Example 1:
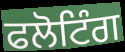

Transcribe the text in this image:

ਫਲੋਟਿੰਗ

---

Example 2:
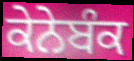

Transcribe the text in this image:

ਕੇਨੇਬੰਕ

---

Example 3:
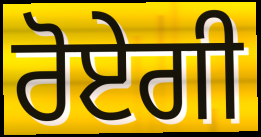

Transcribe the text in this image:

ਰੋਏਗੀ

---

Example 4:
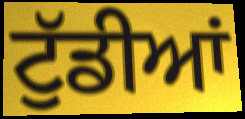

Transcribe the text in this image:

ਟੁੱਡੀਆਂ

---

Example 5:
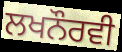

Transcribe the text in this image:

ਲਖਨੌਰਵੀ